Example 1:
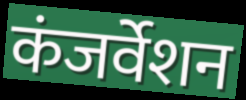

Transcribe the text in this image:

कंजर्वेशन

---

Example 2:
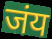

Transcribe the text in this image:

जंय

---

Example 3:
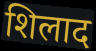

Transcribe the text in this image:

शिलाद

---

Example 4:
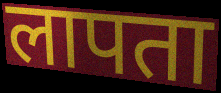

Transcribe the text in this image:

लापता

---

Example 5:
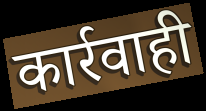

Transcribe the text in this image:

कार्रवाही